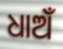
ଧାଅଁ